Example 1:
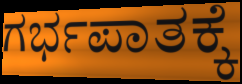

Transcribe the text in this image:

ಗರ್ಭಪಾತಕ್ಕೆ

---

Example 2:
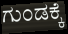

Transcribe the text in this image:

ಗುಂಡಕ್ಕೆ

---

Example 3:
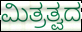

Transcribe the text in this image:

ಮಿತ್ರತ್ವದ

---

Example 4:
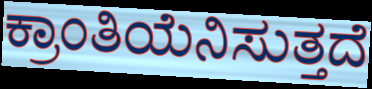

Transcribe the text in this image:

ಕ್ರಾಂತಿಯೆನಿಸುತ್ತದೆ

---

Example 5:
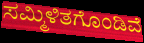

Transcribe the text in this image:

ಸಮ್ಮಿಳಿತಗೊಂಡಿವೆ